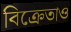
বিক্রেতাও